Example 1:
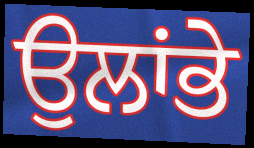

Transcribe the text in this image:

ਉਲਾਂਭੇ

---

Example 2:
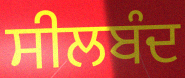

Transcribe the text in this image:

ਸੀਲਬੰਦ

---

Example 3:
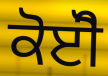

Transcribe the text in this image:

ਕੋਈੋ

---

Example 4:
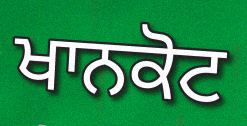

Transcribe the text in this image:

ਖਾਨਕੋਟ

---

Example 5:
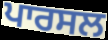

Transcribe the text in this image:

ਪਾਰਸਲ